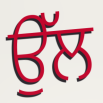
ਉੱਲ